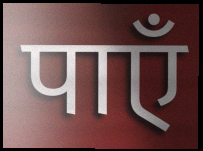
पाएँ